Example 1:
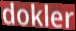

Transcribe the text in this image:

dokler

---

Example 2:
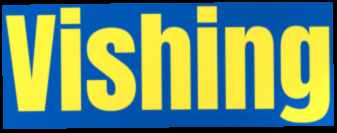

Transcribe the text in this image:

Vishing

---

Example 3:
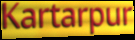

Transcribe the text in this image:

Kartarpur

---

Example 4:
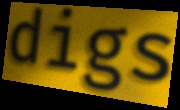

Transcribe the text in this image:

digs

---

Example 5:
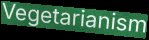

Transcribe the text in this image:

Vegetarianism